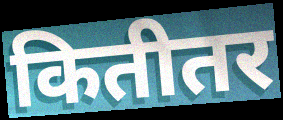
कितीतर